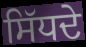
ਸਿੱਧਦੇ